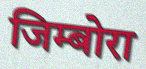
जिम्बोरा